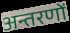
अन्तरणों